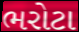
ભરોટા